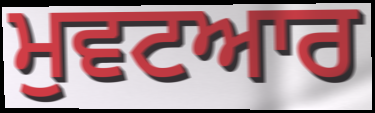
ਮੁਵਟਆਰ